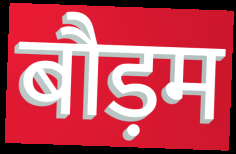
बौड़म